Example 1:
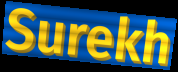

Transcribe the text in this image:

Surekh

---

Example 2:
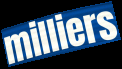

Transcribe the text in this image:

milliers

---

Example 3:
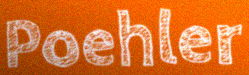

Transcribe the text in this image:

Poehler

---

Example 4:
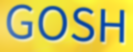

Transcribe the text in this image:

GOSH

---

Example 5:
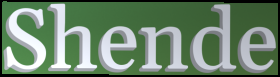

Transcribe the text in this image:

Shende